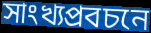
সাংখ্যপ্রবচনে